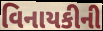
વિનાયકીની